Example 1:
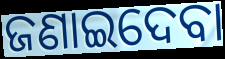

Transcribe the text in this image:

ଜଣାଇଦେବା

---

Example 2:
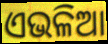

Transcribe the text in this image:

ଏଭଳିଆ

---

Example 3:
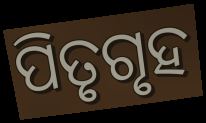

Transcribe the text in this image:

ପିତୃଗୃହ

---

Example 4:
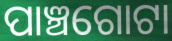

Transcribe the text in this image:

ପାଞ୍ଚଗୋଟା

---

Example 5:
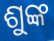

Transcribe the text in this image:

ଶୁଙ୍କ